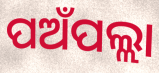
ପଅଁପଲ୍ଲା